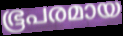
ഭൂപരമായ